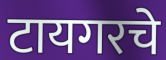
टायगरचे